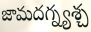
జామదగ్న్యశ్చ